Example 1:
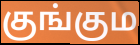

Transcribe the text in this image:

குங்கும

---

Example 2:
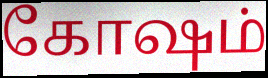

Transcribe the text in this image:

கோஷம்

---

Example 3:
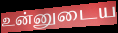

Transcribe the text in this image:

உன்னுடைய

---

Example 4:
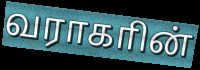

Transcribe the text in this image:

வராகரின்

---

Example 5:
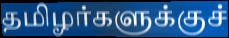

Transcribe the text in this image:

தமிழர்களுக்குச்